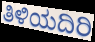
ತಿಳಿಯದಿರಿ